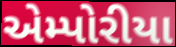
એમ્પોરીયા